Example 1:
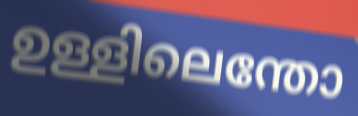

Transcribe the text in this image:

ഉള്ളിലെന്തോ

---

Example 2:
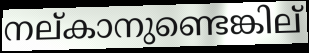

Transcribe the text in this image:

നല്കാനുണ്ടെങ്കില്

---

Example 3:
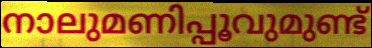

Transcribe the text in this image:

നാലുമണിപ്പൂവുമുണ്ട്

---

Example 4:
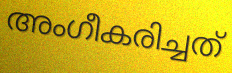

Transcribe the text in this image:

അംഗീകരിച്ചത്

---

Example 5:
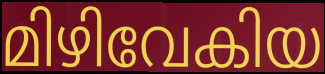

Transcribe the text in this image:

മിഴിവേകിയ